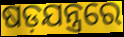
ଷଡ଼ଯନ୍ତ୍ରରେ